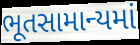
ભૂતસામાન્યમાં